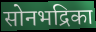
सोनभद्रिका